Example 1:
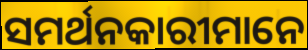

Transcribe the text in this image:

ସମର୍ଥନକାରୀମାନେ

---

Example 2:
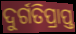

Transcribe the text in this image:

ଦୁର୍ଗତିପ୍ରାପ୍ତ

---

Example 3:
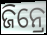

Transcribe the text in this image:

ଜିନ୍ରେ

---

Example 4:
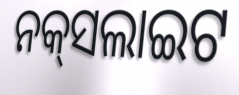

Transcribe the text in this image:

ନକ୍‌ସଲାଇଟ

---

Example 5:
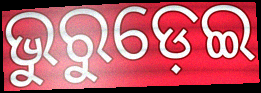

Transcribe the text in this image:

ଭୁରୁଡ଼େଇ